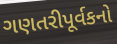
ગણતરીપૂર્વકનો